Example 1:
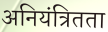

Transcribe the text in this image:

अनियंत्रितता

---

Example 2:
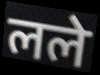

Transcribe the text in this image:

लले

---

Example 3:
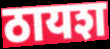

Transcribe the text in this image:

ठायश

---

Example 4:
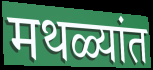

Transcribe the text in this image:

मथळ्यांत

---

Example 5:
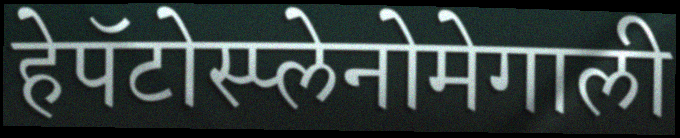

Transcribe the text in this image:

हेपॅटोस्प्लेनोमेगाली